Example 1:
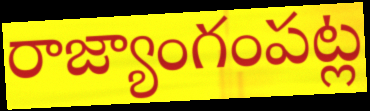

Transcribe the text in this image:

రాజ్యాంగంపట్ల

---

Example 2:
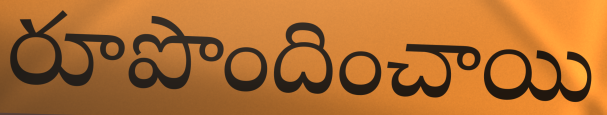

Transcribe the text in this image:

రూపొందించాయి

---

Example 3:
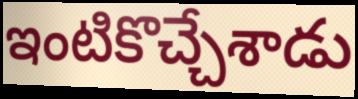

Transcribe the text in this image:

ఇంటికొచ్చేశాడు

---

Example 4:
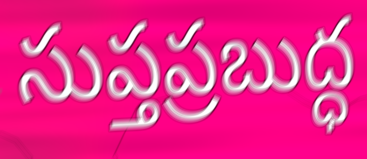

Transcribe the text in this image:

సుప్తప్రబుద్ధ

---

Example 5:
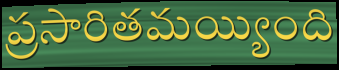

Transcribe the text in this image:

ప్రసారితమయ్యింది